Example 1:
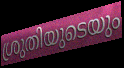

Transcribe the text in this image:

ശ്രുതിയുടെയും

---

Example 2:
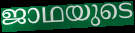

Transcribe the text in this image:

ജാഥയുടെ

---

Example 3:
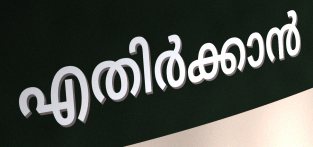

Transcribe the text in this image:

എതിർക്കാൻ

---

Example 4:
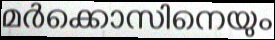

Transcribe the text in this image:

മർക്കൊസിനെയും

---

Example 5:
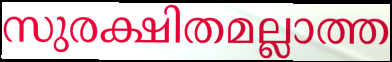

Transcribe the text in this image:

സുരക്ഷിതമല്ലാത്ത